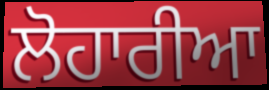
ਲੋਹਾਰੀਆ